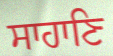
ਸਾਹਾਣਿ